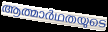
ആത്മാർഥതയുടെ